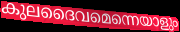
കുലദൈവമെന്നെയാളും